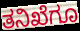
ತನಿಖೆಗೂ